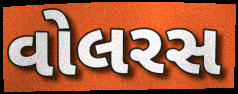
વોલરસ